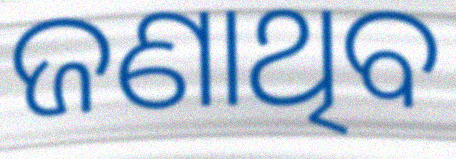
ଜଣାଥିବ